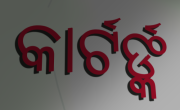
କାର୍ଟର୍ଙ୍କ